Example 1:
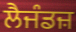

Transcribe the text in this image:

ਲੈਜੰਡਜ਼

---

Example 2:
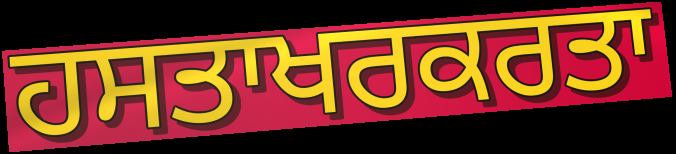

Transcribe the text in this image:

ਹਸਤਾਖਰਕਰਤਾ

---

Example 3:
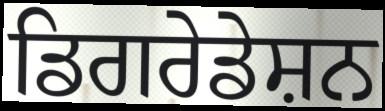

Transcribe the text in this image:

ਡਿਗਰੇਡੇਸ਼ਨ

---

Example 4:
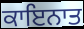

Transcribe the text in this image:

ਕਾਇਨਾਤ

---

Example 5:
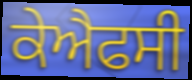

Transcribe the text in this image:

ਕੇਐਫਸੀ